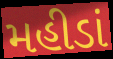
મહીડાં